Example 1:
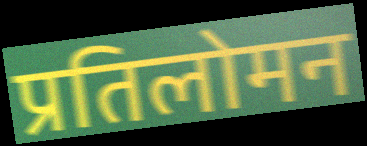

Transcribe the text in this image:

प्रतिलोमन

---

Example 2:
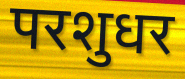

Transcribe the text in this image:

परशुधर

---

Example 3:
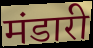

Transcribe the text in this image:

मंडारी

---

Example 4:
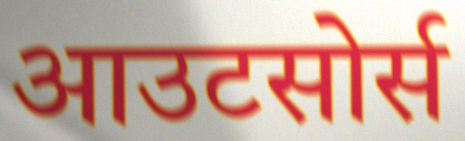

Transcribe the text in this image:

आउटसोर्स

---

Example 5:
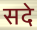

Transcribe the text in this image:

सदे